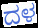
ದಳ